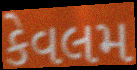
કેવલમ